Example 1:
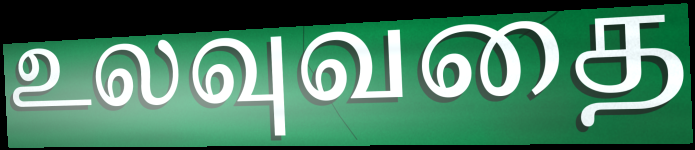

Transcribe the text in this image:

உலவுவதை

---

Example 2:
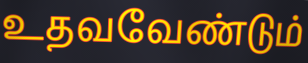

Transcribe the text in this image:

உதவவேண்டும்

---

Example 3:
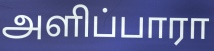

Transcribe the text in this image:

அளிப்பாரா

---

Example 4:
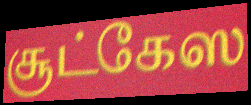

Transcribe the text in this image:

சூட்கேஸ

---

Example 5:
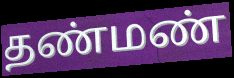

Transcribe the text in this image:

தண்மண்